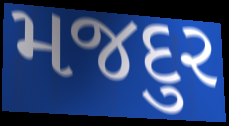
મજદુર